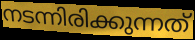
നടന്നിരിക്കുന്നത്